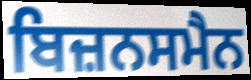
ਬਿਜ਼ਨਸਮੈਨ